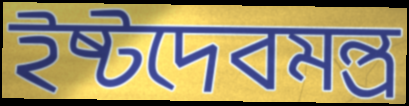
ইষ্টদেবমন্ত্র